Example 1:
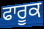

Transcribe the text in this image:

ਫਾਰੂਕ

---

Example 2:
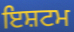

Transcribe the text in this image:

ਇਸ਼ਟਮ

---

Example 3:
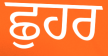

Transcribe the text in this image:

ਛੁਹਰ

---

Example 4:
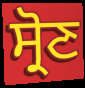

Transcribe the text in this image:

ਸ੍ਰੋਣ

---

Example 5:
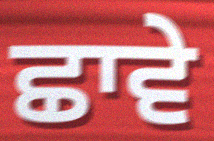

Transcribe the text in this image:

ਛਾਵੇ